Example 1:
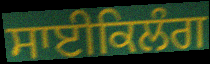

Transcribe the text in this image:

ਸਾਈਕਿਲੰਗ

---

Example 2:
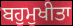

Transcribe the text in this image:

ਬਹੁਮੁਖੀਤਾ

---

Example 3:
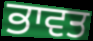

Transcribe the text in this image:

ਭਾਵਤ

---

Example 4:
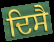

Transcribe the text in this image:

ਦਿਸੈ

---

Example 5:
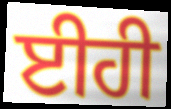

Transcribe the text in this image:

ਈਹੀ